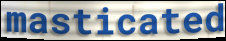
masticated